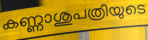
കണ്ണാശുപത്രിയുടെ